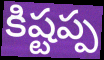
కిష్టప్ప